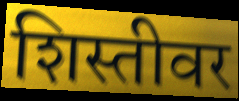
शिस्तीवर